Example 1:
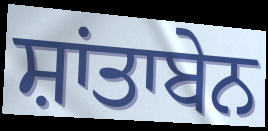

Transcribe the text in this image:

ਸ਼ਾਂਤਾਬੇਨ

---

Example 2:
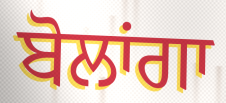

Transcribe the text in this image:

ਬੋਲਾਂਗਾ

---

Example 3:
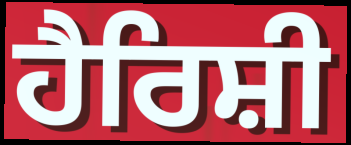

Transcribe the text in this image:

ਹੈਰਿਸ਼ੀ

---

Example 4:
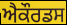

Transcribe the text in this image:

ਐਕੌਰਡਸ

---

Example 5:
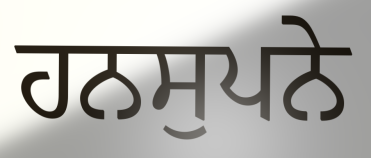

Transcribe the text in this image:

ਹਨਸੁਪਨੇ